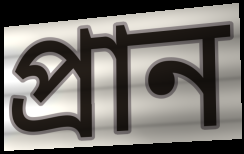
প্রান